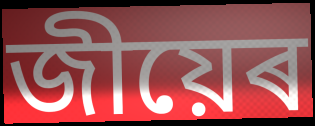
জীয়েৰ